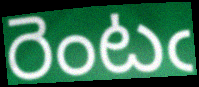
రెంటఁ